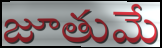
జూతుమే